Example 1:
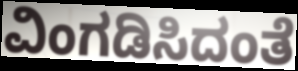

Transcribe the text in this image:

ವಿಂಗಡಿಸಿದಂತೆ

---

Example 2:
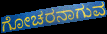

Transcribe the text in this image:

ಗೋಚರನಾಗುವ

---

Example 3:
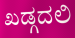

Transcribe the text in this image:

ಖಡ್ಗದಲಿ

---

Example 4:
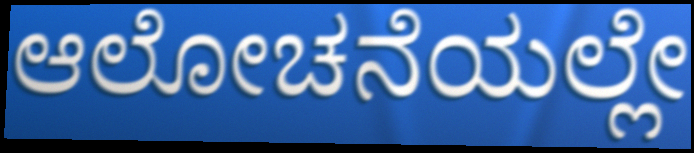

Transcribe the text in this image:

ಆಲೋಚನೆಯಲ್ಲೇ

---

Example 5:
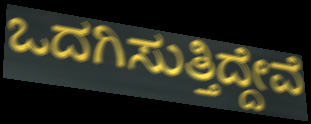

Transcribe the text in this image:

ಒದಗಿಸುತ್ತಿದ್ದೇವೆ